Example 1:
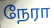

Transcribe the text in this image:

நேரா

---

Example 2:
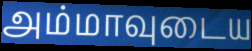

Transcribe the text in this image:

அம்மாவுடைய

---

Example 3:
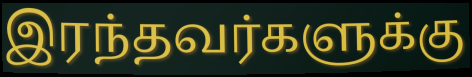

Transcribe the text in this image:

இரந்தவர்களுக்கு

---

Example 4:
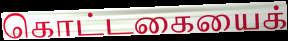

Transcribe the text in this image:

கொட்டகையைக்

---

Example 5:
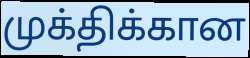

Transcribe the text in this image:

முக்திக்கான